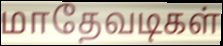
மாதேவடிகள்